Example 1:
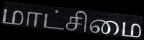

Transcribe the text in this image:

மாட்சிமை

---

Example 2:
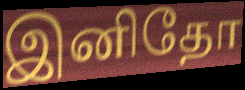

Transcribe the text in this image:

இனிதோ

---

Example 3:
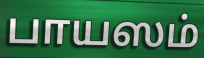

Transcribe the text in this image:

பாயஸம்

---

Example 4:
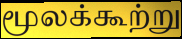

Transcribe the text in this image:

மூலக்கூற்று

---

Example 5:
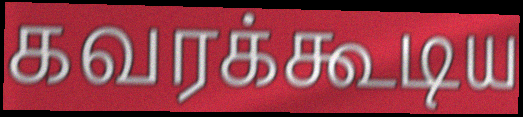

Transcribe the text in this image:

கவரக்கூடிய